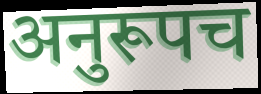
अनुरूपच